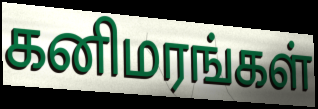
கனிமரங்கள்